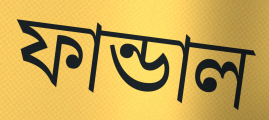
ফান্ডাল